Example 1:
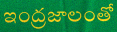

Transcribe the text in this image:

ఇంద్రజాలంతో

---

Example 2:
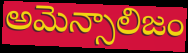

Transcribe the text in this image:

అమెన్సాలిజం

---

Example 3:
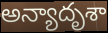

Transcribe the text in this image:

అన్యాదృశా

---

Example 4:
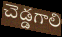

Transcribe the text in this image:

చెడ్డగాలి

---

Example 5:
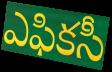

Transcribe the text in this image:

ఎఫికసీ